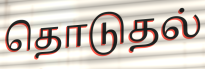
தொடுதல்